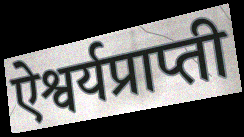
ऐश्वर्यप्राप्ती